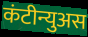
कंटीन्युअस